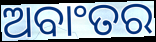
ଅବାଂତର